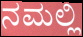
ನಮಲ್ಲಿ